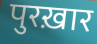
पुरख़ार